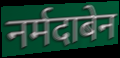
नर्मदाबेन